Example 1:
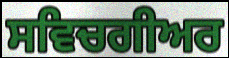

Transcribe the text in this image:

ਸਵਿਚਗੀਅਰ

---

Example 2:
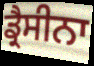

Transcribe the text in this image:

ਡ੍ਰੈਸੀਨਾ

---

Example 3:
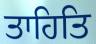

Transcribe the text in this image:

ਤਾਹਿਤਿ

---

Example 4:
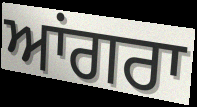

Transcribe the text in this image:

ਆਂਗਰਾ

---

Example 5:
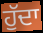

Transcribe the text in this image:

ਹੁੱਦਾ